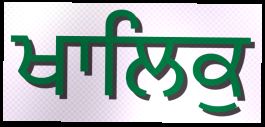
ਖਾਲਿਕੁ